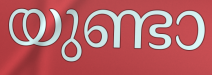
യുണ്ടാ